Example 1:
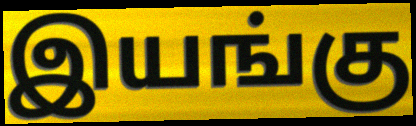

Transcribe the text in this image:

இயங்கு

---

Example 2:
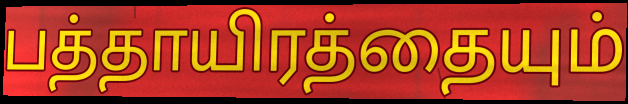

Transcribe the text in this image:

பத்தாயிரத்தையும்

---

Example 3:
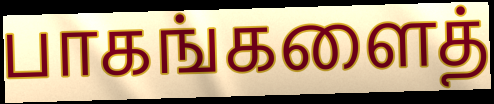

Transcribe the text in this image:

பாகங்களைத்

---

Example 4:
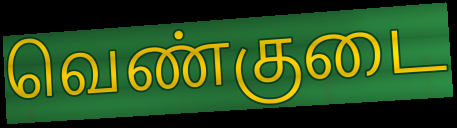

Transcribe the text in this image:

வெண்குடை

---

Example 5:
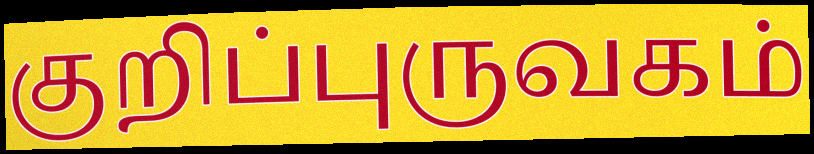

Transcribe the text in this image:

குறிப்புருவகம்